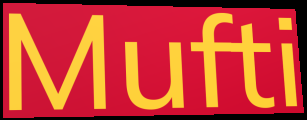
Mufti